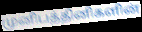
முனிபத்தினிகளின்